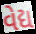
વેદ્ય